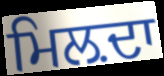
ਮਿਲ਼ਦਾ